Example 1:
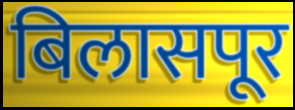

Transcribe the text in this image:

बिलासपूर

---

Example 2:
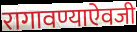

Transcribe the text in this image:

रागावण्याऐवजी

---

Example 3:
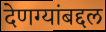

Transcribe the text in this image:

देणग्यांबद्दल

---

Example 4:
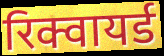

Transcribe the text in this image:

रिक्वायर्ड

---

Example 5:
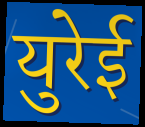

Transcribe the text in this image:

युरेई